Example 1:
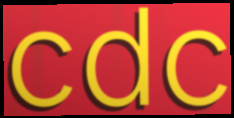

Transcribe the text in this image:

cdc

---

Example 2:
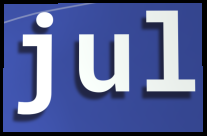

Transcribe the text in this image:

jul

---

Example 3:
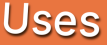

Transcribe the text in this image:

Uses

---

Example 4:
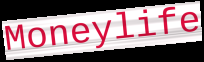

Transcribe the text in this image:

Moneylife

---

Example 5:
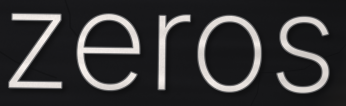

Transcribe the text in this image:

zeros